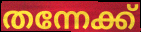
തന്നേക്ക്